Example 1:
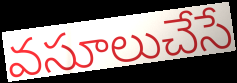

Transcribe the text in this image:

వసూలుచేసే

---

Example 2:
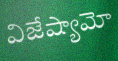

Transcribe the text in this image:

విజేష్యామో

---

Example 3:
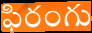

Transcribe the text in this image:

ఫిరంగు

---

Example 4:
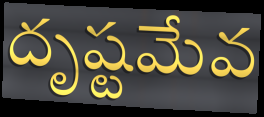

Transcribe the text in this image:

దృష్టమేవ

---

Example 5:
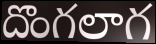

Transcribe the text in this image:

దొంగలాగ